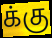
க்கு